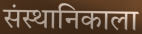
संस्थानिकाला